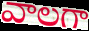
వాలగా